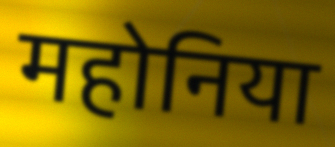
महोनिया